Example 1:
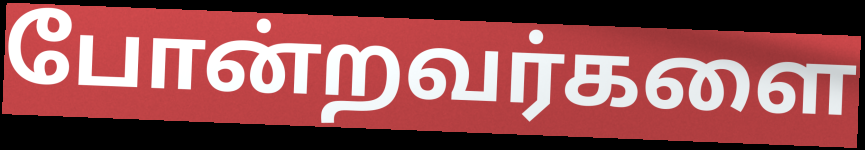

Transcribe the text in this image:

போன்றவர்களை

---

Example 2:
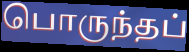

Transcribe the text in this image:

பொருந்தப்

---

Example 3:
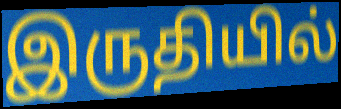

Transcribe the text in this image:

இருதியில்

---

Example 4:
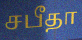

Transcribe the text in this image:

சபீதா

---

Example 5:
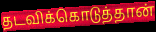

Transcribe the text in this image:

தடவிக்கொடுத்தான்